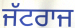
ਜੱਟਰਾਜ